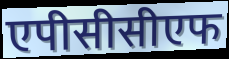
एपीसीसीएफ